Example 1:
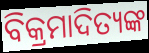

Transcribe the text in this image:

ବିକ୍ରମାଦିତ୍ୟଙ୍କ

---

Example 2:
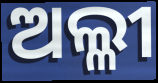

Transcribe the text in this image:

ଅଲ୍ଳୀ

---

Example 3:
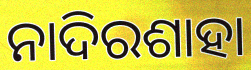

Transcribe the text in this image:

ନାଦିରଶାହା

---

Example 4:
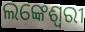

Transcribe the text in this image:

ଲଙ୍କେଶ୍ୱରୀ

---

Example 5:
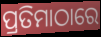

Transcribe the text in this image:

ପ୍ରତିମାଠାରେ